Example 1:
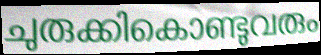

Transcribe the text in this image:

ചുരുക്കികൊണ്ടുവരും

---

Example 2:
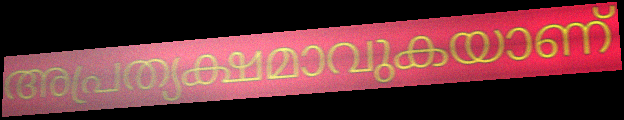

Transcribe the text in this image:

അപ്രത്യക്ഷമാവുകയാണ്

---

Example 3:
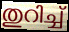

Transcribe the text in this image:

തുറിച്ച്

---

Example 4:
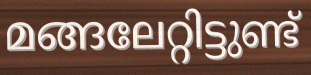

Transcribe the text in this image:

മങ്ങലേറ്റിട്ടുണ്ട്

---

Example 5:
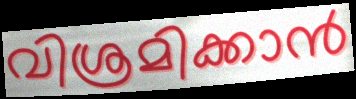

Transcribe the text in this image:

വിശ്രമിക്കാൻ